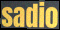
sadio